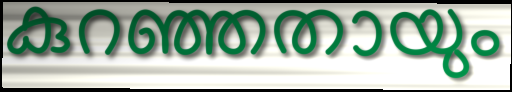
കുറഞ്ഞതായും